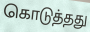
கொடுத்தது